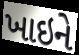
ખાઇને